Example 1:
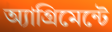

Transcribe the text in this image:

অ্যাগ্রিমেন্টে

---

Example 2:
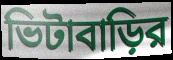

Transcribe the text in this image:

ভিটাবাড়ির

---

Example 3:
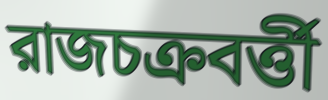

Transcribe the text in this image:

রাজচক্রবর্ত্তী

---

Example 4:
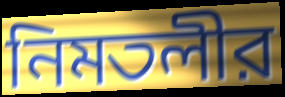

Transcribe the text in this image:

নিমতলীর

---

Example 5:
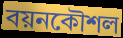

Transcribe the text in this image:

বয়নকৌশল